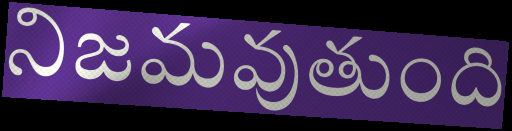
నిజమవుతుంది